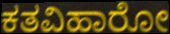
ಕತವಿಹಾರೋ